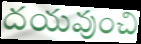
దయవుంచి